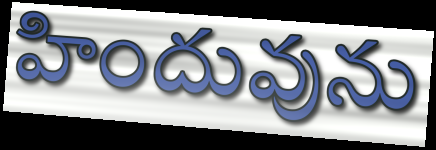
హిందువును